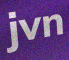
jvn